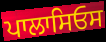
ਪਾਲਾਸਿਓਸ